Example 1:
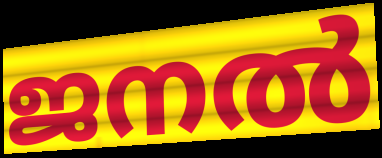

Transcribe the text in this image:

ജനൽ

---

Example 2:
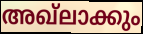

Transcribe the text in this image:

അഖ്ലാക്കും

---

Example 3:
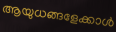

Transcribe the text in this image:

ആയുധങ്ങളേക്കാൾ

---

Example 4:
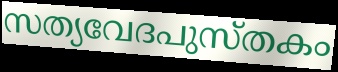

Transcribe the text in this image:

സത്യവേദപുസ്തകം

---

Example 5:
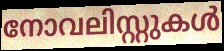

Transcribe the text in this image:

നോവലിസ്റ്റുകൾ